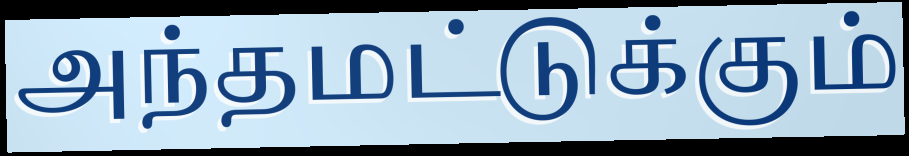
அந்தமட்டுக்கும்